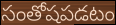
సంతోషపడటం